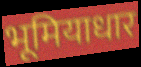
भूमियाधार